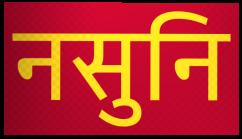
नसुनि